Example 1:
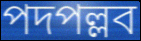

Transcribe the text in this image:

পদপল্লব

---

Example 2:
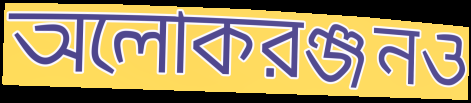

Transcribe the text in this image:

অলোকরঞ্জনও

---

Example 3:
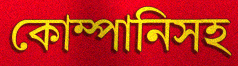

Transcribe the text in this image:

কোম্পানিসহ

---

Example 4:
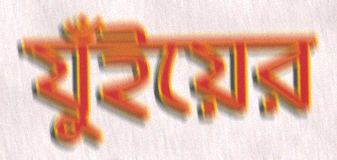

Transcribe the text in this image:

যুঁইয়ের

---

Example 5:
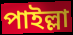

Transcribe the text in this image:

পাইল্লা